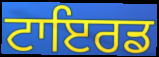
ਟਾਇਰਡ